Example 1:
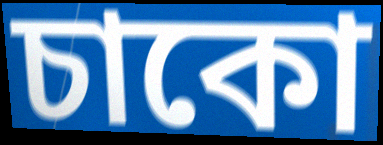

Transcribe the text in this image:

চাকো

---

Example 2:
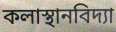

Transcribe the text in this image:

কলাস্থানবিদ্যা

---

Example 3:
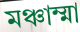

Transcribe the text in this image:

মঞ্চাম্মা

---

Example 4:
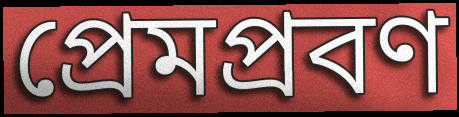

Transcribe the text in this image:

প্রেমপ্রবণ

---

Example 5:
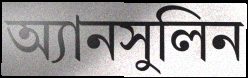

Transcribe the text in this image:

অ্যানসুলিন